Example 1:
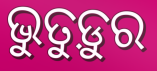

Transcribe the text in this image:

ଭୁତୁଡ଼ୁର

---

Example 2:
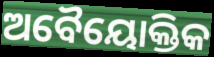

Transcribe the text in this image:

ଅବୈୟୋକ୍ତିକ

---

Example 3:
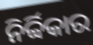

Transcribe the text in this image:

ନିର୍ବ୍ବିକାର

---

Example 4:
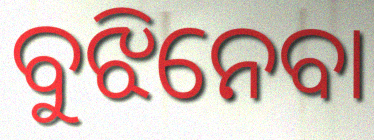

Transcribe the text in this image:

ବୁଝିନେବା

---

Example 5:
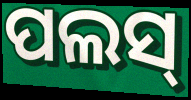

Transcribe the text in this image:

ପଲସ୍